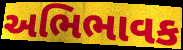
અભિભાવક